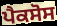
ਪੈਕਸੋਸ